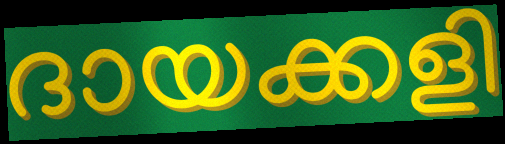
ദായക്കളി